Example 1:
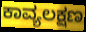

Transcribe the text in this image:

ಕಾವ್ಯಲಕ್ಷಣ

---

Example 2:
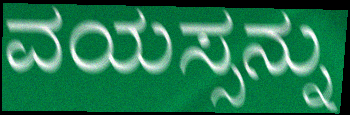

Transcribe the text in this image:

ವಯಸ್ಸನ್ನು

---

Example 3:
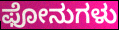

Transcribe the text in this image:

ಫೋನುಗಳು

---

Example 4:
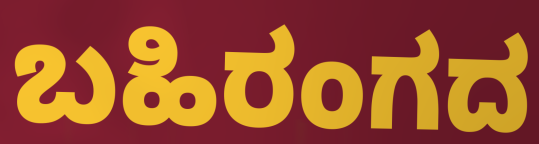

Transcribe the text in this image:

ಬಹಿರಂಗದ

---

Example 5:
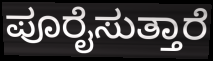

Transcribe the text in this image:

ಪೂರೈಸುತ್ತಾರೆ